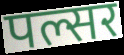
पल्सर